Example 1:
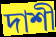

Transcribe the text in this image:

দাশী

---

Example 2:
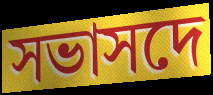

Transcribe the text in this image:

সভাসদে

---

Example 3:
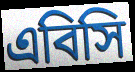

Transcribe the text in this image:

এবিসি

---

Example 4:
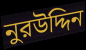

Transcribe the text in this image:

নুরউদ্দিন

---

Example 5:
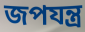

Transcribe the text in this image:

জপযন্ত্র